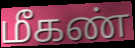
மீகண்